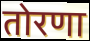
तोरणा